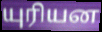
யுரியன